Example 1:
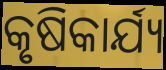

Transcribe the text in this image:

କୃଷିକାର୍ଯ୍ୟ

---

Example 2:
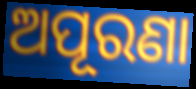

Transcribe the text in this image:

ଅପୂରଣା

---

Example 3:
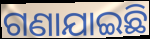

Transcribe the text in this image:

ଗଣାଯାଇଛି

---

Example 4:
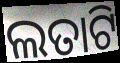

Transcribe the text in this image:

ଲତାଟି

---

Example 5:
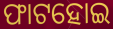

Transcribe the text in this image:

ଫାଟହୋଇ